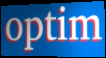
optim